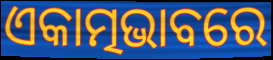
ଏକାତ୍ମଭାବରେ